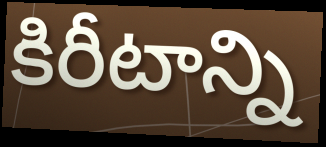
కిరీటాన్ని